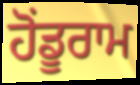
ਹੋਂਡੂਰਾਮ